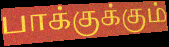
பாக்குக்கும்